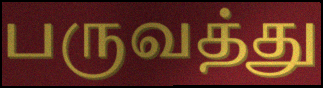
பருவத்து